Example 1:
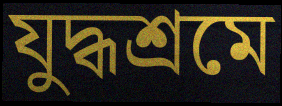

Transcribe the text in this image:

যুদ্ধশ্রমে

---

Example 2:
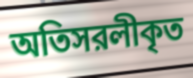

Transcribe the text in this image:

অতিসরলীকৃত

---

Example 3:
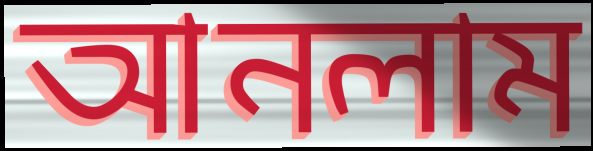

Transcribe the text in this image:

আনলাম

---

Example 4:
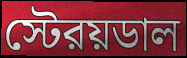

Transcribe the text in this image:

স্টেরয়ডাল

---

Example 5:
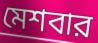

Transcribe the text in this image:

মেশবার